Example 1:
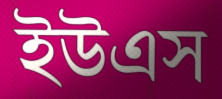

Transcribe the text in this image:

ইউএস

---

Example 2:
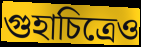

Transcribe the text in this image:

গুহাচিত্রেও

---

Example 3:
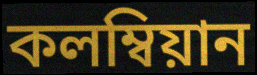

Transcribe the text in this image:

কলম্বিয়ান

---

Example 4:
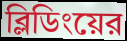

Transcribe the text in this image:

ব্লিডিংয়ের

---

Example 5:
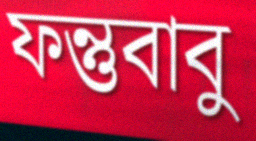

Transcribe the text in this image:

ফন্তুবাবু